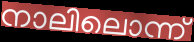
നാലിലൊന്ന്